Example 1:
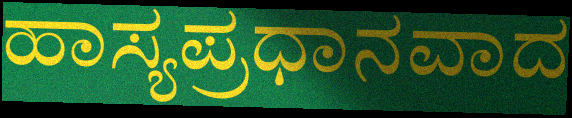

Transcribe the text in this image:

ಹಾಸ್ಯಪ್ರಧಾನವಾದ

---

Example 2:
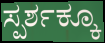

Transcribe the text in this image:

ಸ್ಪರ್ಶಕ್ಕೂ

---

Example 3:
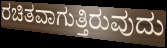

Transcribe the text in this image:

ರಚಿತವಾಗುತ್ತಿರುವುದು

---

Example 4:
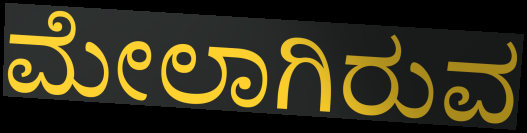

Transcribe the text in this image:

ಮೇಲಾಗಿರುವ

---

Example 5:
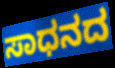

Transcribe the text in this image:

ಸಾಧನದ